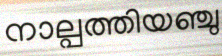
നാല്പത്തിയഞ്ചു